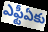
ఎఫ్టీఏకు